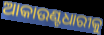
ଆକାଉଣ୍ଟଧାରୀକୁ